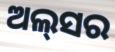
ଅଲ୍‌ସର